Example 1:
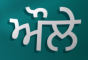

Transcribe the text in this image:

ਔਲੇ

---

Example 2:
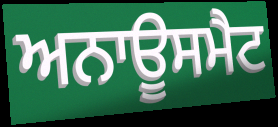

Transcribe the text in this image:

ਅਨਾਊਸਮੈਟ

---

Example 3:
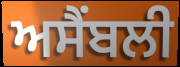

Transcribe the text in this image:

ਅਸੈਂਬਲੀ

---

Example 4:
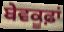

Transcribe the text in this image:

ਬੇਵਕੂਫ਼ਾਂ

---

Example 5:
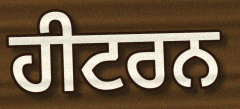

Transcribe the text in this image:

ਹੀਟਰਨ